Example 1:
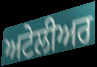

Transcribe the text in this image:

ਅਟੇਲੀਅਰ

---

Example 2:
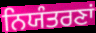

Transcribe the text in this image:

ਨਿਯੰਤਰਣਾਂ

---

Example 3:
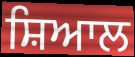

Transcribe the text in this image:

ਸ਼ਿਆਲ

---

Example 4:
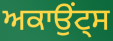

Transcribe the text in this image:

ਅਕਾਉਂਟ੍ਸ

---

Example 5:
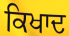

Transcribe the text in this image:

ਕਿਖਾਦ